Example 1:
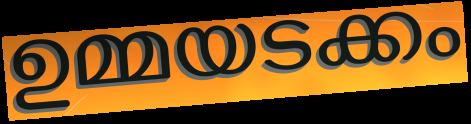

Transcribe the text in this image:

ഉമ്മയടക്കം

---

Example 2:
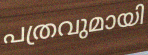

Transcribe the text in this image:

പത്രവുമായി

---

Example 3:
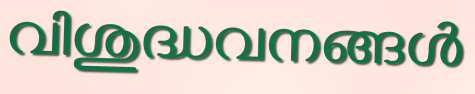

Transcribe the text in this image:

വിശുദ്ധവനങ്ങൾ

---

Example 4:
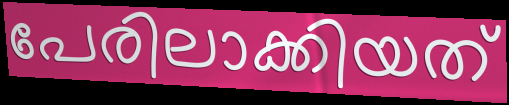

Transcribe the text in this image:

പേരിലാക്കിയത്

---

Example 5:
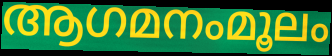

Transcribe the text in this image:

ആഗമനംമൂലം